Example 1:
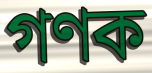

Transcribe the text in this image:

গণক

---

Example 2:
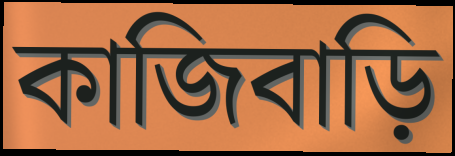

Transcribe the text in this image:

কাজিবাড়ি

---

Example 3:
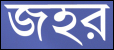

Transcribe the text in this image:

জহর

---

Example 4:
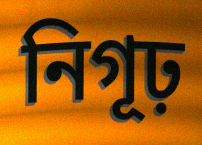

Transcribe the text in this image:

নিগূঢ়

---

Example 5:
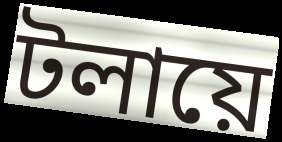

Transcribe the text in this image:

টলায়ে